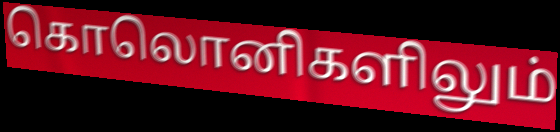
கொலொனிகளிலும்